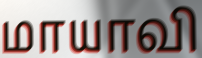
மாயாவி